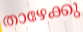
താഴേക്കു